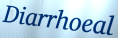
Diarrhoeal